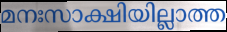
മനഃസാക്ഷിയില്ലാത്ത